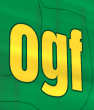
ogf